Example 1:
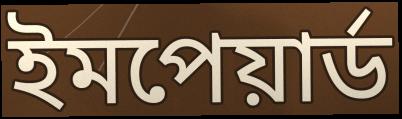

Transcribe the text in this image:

ইমপেয়াৰ্ড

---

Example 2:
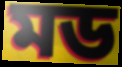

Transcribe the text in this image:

মড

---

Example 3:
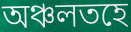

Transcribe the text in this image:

অঞ্চলতহে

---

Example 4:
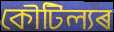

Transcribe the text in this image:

কৌটিল্যৰ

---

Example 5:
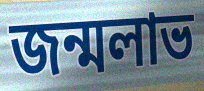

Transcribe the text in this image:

জন্মলাভ